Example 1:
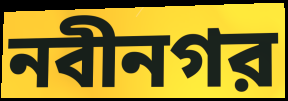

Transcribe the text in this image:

নবীনগর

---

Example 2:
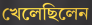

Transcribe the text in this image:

খেলেছিলেন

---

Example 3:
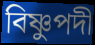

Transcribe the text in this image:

বিষ্ণুপদী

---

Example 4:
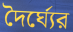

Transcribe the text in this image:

দৈর্ঘ্যের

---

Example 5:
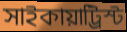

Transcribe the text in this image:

সাইকায়াট্রিস্ট